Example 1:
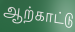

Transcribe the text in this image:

ஆற்காட்டு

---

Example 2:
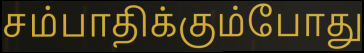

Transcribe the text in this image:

சம்பாதிக்கும்போது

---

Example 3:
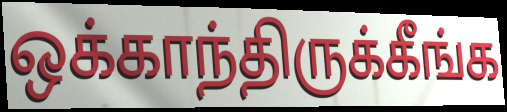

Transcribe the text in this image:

ஒக்காந்திருக்கீங்க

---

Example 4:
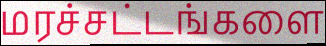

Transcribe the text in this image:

மரச்சட்டங்களை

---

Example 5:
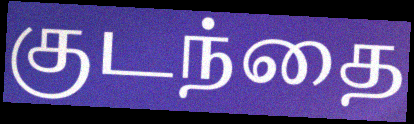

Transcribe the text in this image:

குடந்தை